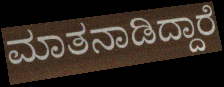
ಮಾತನಾಡಿದ್ದಾರೆ